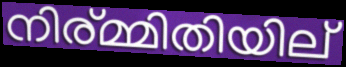
നിര്മ്മിതിയില്